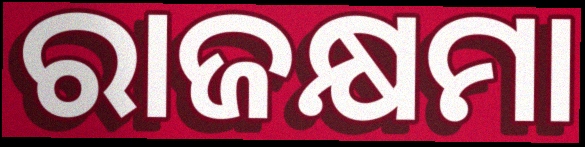
ରାଜକ୍ଷମା